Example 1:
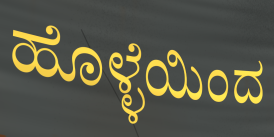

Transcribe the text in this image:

ಹೊಳ್ಳೆಯಿಂದ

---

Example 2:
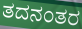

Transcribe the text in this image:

ತದನಂತರ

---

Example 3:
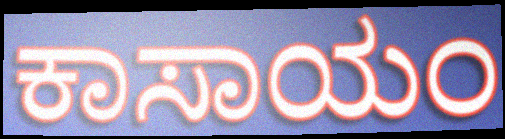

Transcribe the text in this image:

ಕಾಸಾಯಂ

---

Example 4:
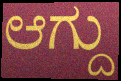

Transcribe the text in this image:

ಆಗ್ದು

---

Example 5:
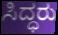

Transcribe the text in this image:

ಸಿದ್ಧರು